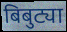
बिबुट्या